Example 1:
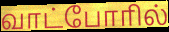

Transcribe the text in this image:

வாட்போரில்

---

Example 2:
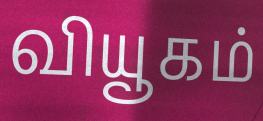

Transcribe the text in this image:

வியூகம்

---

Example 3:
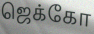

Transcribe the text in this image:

ஜெக்கோ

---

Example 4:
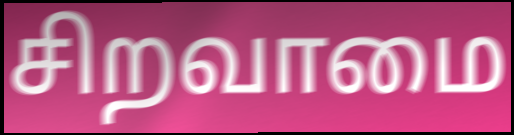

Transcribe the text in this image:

சிறவாமை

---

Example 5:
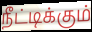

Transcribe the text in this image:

நீட்டிக்கும்